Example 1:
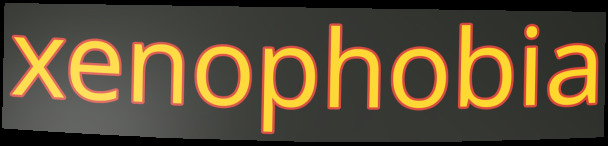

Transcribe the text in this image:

xenophobia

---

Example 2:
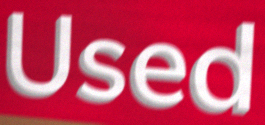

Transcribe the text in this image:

Used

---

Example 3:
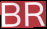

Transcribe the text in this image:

BR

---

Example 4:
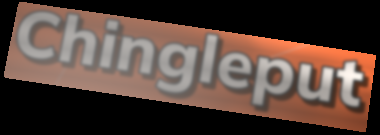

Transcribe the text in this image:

Chingleput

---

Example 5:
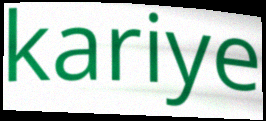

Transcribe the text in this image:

kariye